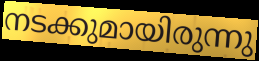
നടക്കുമായിരുന്നു